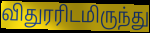
விதுரரிடமிருந்து